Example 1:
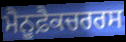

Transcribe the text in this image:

ਮੈਨੂਫ਼ੈਕਚਰਰਸ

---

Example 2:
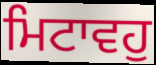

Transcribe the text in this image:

ਮਿਟਾਵਹੁ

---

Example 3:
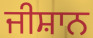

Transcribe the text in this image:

ਜੀਸ਼ਾਨ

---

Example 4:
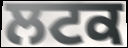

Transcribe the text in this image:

ਲਟਕ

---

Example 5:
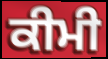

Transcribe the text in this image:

ਕੀਮੀ